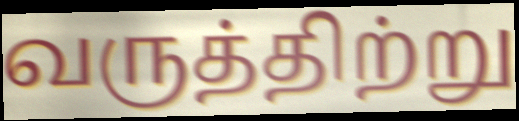
வருத்திற்று